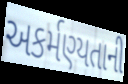
અકર્મણ્યતાની